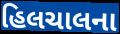
હિલચાલના